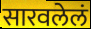
सारवलेलं